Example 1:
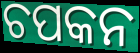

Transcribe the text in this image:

ଚପକନ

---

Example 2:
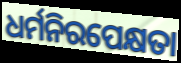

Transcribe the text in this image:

ଧର୍ମନିରପେକ୍ଷତା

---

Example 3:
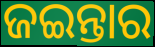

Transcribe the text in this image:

ଜଇନ୍ତାର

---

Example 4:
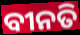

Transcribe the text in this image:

ବୀନତି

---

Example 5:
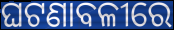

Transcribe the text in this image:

ଘଟଣାବଳୀରେ